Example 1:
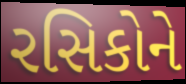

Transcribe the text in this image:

રસિકોને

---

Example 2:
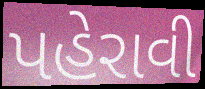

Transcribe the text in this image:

પહેરાવી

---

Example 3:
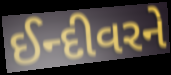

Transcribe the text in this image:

ઈન્દીવરને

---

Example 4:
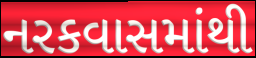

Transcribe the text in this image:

નરકવાસમાંથી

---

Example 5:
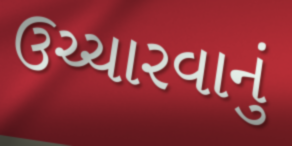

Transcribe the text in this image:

ઉચ્ચારવાનું